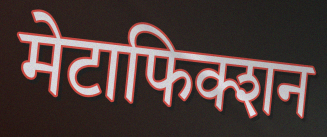
मेटाफिक्शन